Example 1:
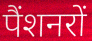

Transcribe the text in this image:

पैंशनरों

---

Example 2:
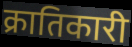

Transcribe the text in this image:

क्रातिकारी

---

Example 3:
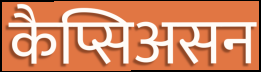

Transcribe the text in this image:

कैप्सिअसन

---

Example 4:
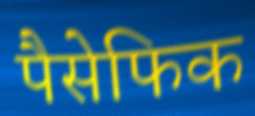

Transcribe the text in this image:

पैसेफिक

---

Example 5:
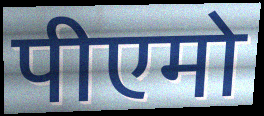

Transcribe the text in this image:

पीएमो